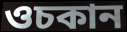
ওচকান